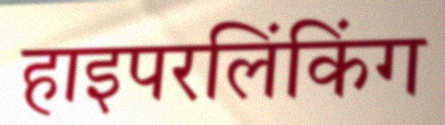
हाइपरलिंकिंग